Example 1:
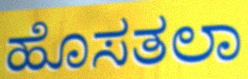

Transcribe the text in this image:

ಹೊಸತಲಾ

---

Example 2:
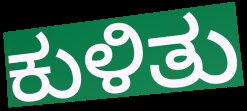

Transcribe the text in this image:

ಕುಳಿತು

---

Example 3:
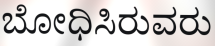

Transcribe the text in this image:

ಬೋಧಿಸಿರುವರು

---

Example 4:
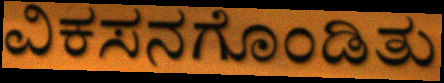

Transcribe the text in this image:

ವಿಕಸನಗೊಂಡಿತು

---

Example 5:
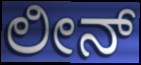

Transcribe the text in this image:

ಲೀನ್